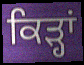
ਕਿੜ੍ਹਾਂ